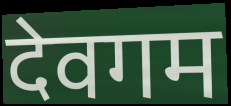
देवगम